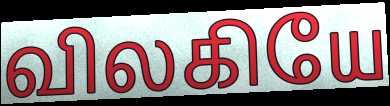
விலகியே